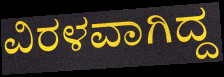
ವಿರಳವಾಗಿದ್ದ